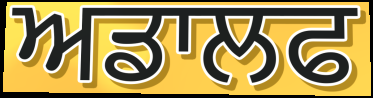
ਅਡਾਲਫ